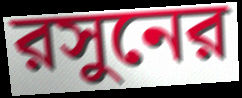
রসুনের